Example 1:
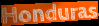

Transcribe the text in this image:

Honduras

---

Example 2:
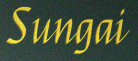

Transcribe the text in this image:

Sungai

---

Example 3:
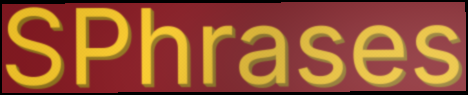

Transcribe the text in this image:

SPhrases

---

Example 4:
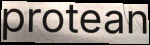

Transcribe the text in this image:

protean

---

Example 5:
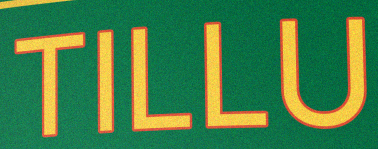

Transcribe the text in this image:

TILLU